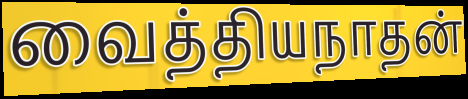
வைத்தியநாதன்